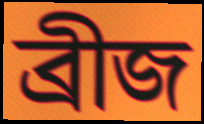
ব্ৰীজ